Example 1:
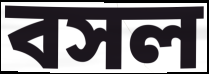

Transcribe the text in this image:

বসল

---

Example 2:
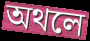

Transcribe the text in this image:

অথলে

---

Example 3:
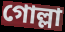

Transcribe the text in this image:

গোল্লা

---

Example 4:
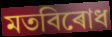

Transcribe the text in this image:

মতবিৰোধ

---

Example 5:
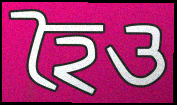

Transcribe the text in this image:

হৈও